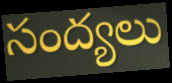
సంద్యలు